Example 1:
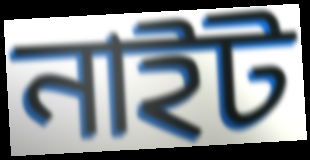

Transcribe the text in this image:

নাইট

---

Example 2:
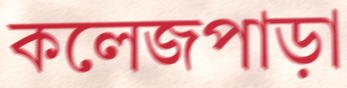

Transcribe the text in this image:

কলেজপাড়া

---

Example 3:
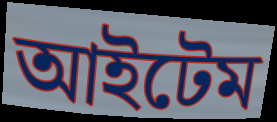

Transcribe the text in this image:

আইটেম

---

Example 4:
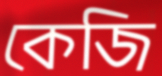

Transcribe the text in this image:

কেজি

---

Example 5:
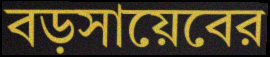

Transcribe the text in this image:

বড়সায়েবের